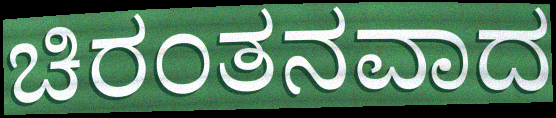
ಚಿರಂತನವಾದ